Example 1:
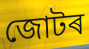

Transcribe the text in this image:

জোটৰ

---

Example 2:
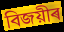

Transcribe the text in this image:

বিজয়ীৰ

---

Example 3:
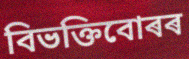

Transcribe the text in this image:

বিভক্তিবোৰৰ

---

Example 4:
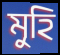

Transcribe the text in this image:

মুহি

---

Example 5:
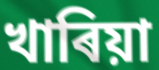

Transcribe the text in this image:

খাৰিয়া